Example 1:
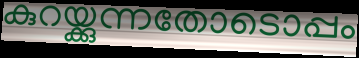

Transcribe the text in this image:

കുറയ്ക്കുന്നതോടൊപ്പം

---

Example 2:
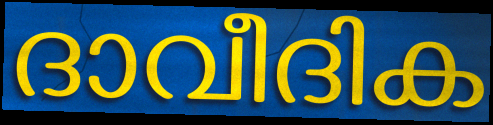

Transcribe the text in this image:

ദാവീദിക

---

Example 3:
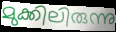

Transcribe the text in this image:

മുക്കിലിരുന്നു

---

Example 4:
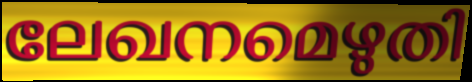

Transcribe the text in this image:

ലേഖനമെഴുതി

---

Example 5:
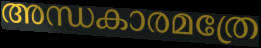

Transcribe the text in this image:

അന്ധകാരമത്രേ